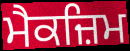
ਮੈਕਜ਼ਿਮ